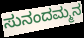
ಸುನಂದಮ್ಮನ